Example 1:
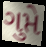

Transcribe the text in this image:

ગુપ્તે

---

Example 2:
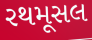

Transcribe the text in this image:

રથમૂસલ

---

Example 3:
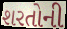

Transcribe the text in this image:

શરતોની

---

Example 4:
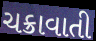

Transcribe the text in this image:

ચક્રાવાતી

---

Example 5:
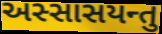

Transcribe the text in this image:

અસ્સાસયન્તુ